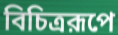
বিচিত্ররূপে